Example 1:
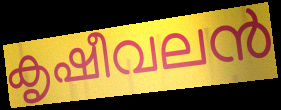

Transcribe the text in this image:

കൃഷീവലൻ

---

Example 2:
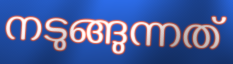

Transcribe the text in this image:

നടുങ്ങുന്നത്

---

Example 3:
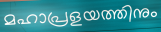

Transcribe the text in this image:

മഹാപ്രളയത്തിനും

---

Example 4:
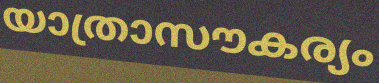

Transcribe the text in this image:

യാത്രാസൗകര്യം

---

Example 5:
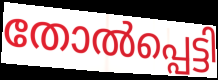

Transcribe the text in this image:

തോൽപ്പെട്ടി